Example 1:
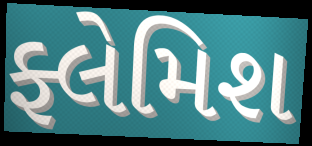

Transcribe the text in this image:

ફ્લેમિશ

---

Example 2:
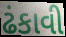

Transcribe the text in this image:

ઢંકાવી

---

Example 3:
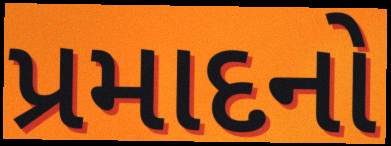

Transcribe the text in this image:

પ્રમાદનો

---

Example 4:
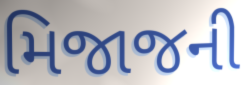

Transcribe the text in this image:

મિજાજની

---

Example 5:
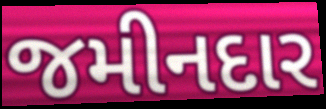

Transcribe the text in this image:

જમીનદાર